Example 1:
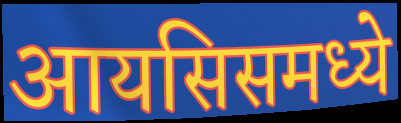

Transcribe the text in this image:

आयसिसमध्ये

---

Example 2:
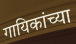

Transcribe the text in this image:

गायिकांच्या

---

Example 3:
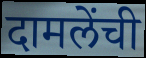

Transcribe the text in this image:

दामलेंची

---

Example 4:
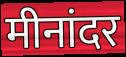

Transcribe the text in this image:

मीनांदर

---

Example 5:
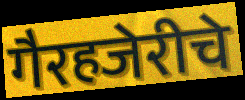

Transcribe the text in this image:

गैरहजेरीचे